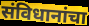
संविधानांचा